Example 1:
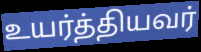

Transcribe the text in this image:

உயர்த்தியவர்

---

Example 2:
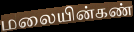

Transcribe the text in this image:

மலையின்கண்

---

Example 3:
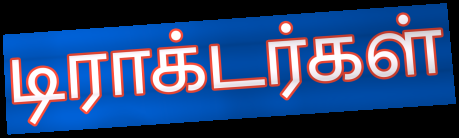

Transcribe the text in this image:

டிராக்டர்கள்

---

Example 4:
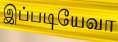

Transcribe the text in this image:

இப்படியேவா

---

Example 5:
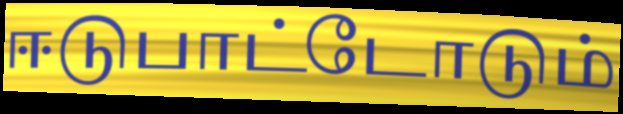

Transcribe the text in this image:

ஈடுபாட்டோடும்